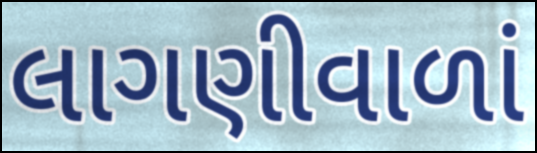
લાગણીવાળાં